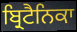
ਬ੍ਰਿਟੈਨਿਕਾ